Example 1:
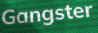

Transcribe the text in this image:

Gangster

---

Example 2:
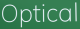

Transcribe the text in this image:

Optical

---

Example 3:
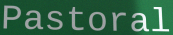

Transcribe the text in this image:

Pastoral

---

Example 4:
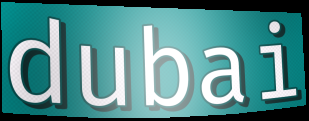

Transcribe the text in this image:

dubai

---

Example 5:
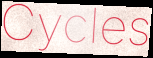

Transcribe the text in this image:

Cycles